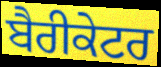
ਬੈਰੀਕੇਟਰ